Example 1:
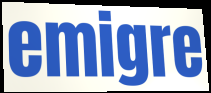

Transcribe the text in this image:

emigre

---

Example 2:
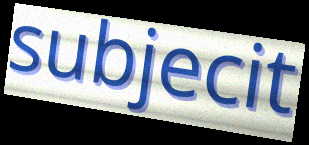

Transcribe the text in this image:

subjecit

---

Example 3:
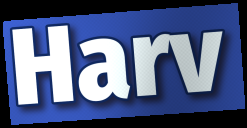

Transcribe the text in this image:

Harv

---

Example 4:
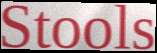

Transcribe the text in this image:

Stools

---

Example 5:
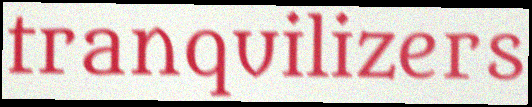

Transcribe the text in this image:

tranquilizers